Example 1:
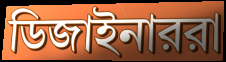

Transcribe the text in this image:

ডিজাইনাররা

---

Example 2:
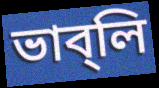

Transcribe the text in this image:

ভাব্‌লি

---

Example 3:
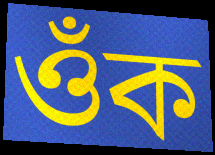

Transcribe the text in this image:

ওঁক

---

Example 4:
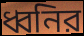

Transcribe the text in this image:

ধ্বনির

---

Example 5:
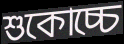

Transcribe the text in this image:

শুকোচ্চে